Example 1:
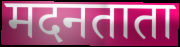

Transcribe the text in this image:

मदनताता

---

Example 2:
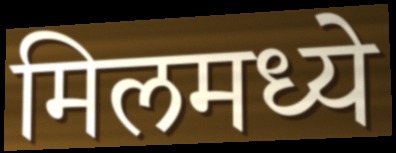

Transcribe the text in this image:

मिलमध्ये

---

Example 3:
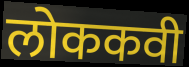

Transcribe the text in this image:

लोककवी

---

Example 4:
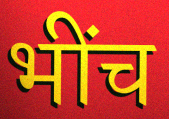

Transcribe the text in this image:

भींच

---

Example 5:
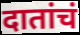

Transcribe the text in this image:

दातांचं